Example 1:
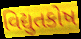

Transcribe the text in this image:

વિદ્યુતકોષ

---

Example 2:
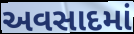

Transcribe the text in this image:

અવસાદમાં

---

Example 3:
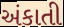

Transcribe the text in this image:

અંકાતી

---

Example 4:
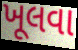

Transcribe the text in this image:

ખૂલવા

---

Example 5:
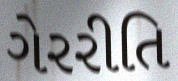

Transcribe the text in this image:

ગેરરીતિ